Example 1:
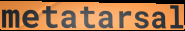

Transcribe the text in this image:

metatarsal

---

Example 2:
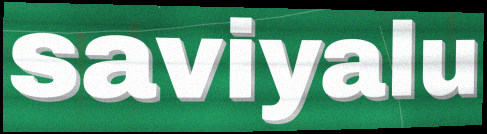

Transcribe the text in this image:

saviyalu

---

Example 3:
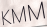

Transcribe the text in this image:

KMM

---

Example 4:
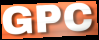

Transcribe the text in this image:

GPC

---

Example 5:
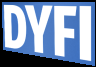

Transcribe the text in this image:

DYFI